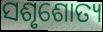
ସଶୃଶୋତ୍ୟ